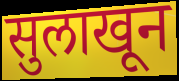
सुलाखून